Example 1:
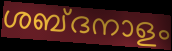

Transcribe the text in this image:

ശബ്ദനാളം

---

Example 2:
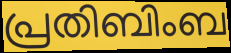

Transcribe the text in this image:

പ്രതിബിംബ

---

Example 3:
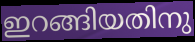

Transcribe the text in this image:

ഇറങ്ങിയതിനു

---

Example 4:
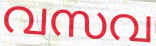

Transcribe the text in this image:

വസവ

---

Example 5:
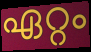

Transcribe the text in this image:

ഏറ്റം